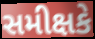
સમીક્ષકે